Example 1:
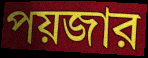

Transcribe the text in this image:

পয়জার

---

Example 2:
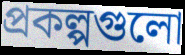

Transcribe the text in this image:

প্রকল্পগুলো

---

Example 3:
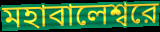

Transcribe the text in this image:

মহাবালেশ্বরে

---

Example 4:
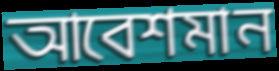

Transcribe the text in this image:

আবেশমান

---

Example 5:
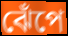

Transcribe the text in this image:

ঝেঁপে